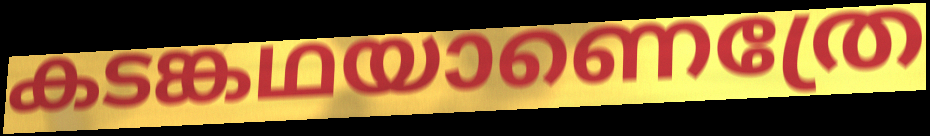
കടങ്കഥയാണെത്രേ